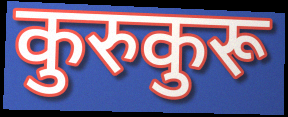
कुरुकुरू